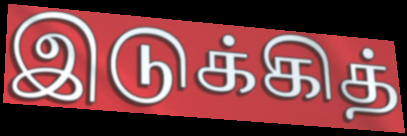
இடுக்கித்